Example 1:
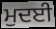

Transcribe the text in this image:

ਮੁਦਈ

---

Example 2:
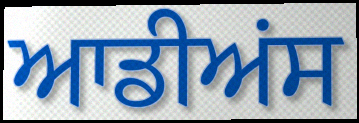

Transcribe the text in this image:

ਆਡੀਅਂਸ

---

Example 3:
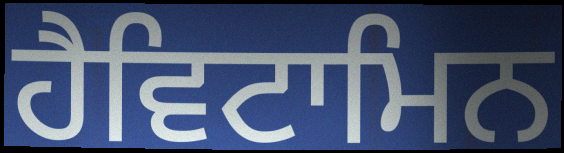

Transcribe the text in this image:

ਹੈਵਿਟਾਮਿਨ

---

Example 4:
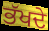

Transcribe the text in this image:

ਭੱਖਦੇ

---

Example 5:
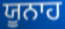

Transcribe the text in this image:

ਯੂਨਾਹ